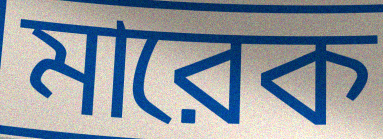
মারেক